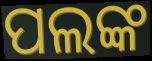
ପଲଙ୍କ